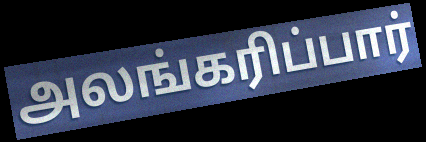
அலங்கரிப்பார்